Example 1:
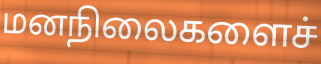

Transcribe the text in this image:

மனநிலைகளைச்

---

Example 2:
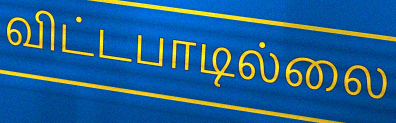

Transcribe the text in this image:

விட்டபாடில்லை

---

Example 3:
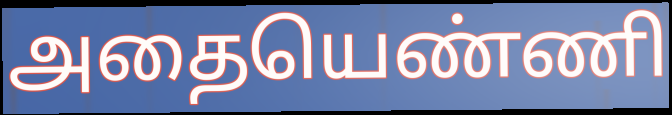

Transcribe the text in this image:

அதையெண்ணி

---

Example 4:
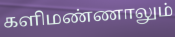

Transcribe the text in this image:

களிமண்ணாலும்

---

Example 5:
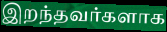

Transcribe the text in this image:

இறந்தவர்களாக